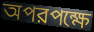
অপরপক্ষে